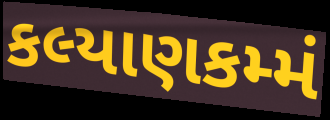
કલ્યાણકમ્મં